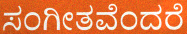
ಸಂಗೀತವೆಂದರೆ